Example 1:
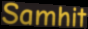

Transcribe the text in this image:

Samhit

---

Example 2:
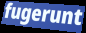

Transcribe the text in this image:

fugerunt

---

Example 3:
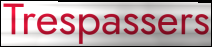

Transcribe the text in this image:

Trespassers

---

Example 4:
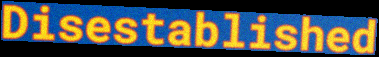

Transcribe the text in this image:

Disestablished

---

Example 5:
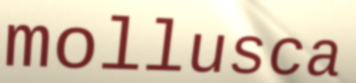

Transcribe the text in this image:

mollusca